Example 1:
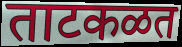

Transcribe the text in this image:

ताटकळत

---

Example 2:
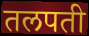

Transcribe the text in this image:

तलपती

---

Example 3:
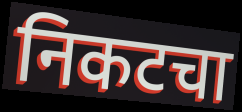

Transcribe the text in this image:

निकटचा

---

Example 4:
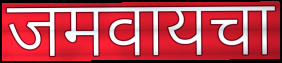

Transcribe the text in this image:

जमवायचा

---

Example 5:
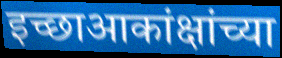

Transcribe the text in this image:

इच्छाआकांक्षांच्या